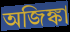
অজিঙ্কা